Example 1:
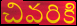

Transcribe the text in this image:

చివరికి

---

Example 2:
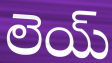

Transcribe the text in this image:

లెయ్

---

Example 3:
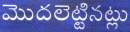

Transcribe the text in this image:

మొదలెట్టినట్లు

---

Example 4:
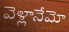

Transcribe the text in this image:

వెళ్లానేమో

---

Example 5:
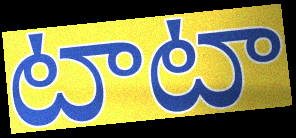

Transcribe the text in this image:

టాటా